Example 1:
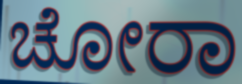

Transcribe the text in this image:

ಚೋರಾ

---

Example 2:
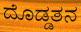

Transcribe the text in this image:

ದೊಡ್ಡತನ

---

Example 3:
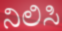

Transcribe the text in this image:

ನಿಲಿಸಿ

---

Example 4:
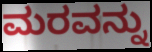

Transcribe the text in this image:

ಮರವನ್ನು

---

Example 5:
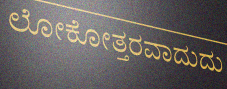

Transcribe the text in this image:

ಲೋಕೋತ್ತರವಾದುದು